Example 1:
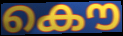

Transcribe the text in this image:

കൌ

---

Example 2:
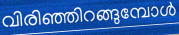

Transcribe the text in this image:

വിരിഞ്ഞിറങ്ങുമ്പോൾ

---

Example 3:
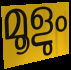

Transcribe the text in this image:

മൂളും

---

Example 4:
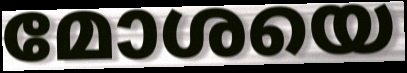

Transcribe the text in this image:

മോശയെ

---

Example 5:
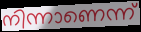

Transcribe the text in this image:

നിന്നാണെന്ന്